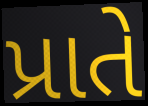
પ્રાતે